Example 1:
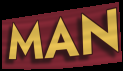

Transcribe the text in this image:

MAN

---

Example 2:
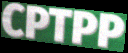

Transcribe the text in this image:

CPTPP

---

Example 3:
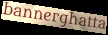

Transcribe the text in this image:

bannerghatta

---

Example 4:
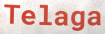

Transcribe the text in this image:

Telaga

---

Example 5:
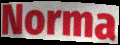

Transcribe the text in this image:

Norma